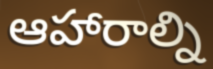
ఆహారాల్ని